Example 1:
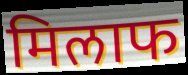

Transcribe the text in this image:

मिलाफ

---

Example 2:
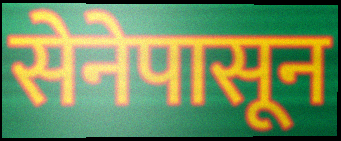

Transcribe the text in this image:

सेनेपासून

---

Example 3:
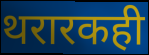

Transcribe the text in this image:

थरारकही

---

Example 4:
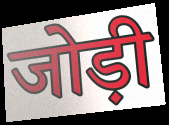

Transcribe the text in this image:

जोड़ी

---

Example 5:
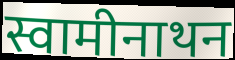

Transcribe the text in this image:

स्वामीनाथन